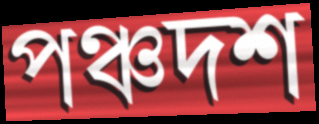
পঞ্চদশ